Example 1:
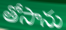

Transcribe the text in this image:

తోసాను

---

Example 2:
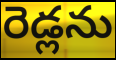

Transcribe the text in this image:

రెడ్లను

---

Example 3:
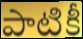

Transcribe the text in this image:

పాటికీ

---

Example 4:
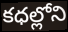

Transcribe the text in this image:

కధల్లోని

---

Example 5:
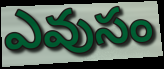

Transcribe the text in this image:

ఎవుసం